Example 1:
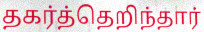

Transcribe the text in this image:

தகர்த்தெறிந்தார்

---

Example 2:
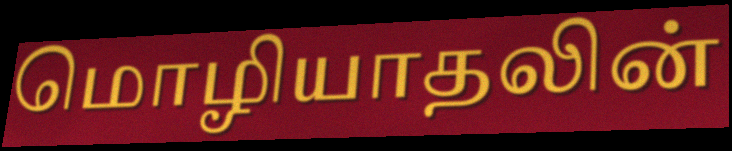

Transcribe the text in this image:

மொழியாதலின்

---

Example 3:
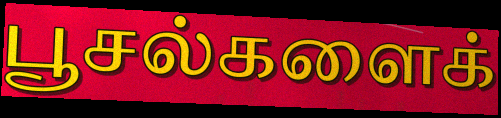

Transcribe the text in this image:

பூசல்களைக்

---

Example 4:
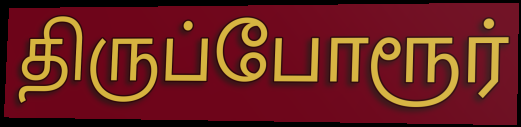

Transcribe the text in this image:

திருப்போரூர்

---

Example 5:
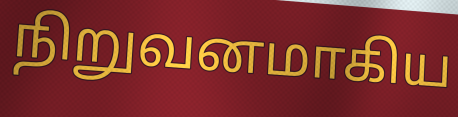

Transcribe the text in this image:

நிறுவனமாகிய